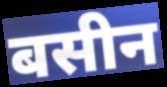
बसीन